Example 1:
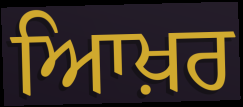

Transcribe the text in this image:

ਆਿਖ਼ਰ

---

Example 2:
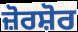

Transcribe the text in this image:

ਜ਼ੋਰਸ਼ੋਰ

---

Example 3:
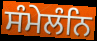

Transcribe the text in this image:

ਸੰਮੇਲੰਨਿ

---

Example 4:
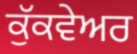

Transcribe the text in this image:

ਕੁੱਕਵੇਅਰ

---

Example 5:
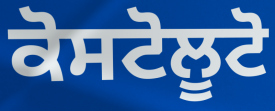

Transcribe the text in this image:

ਕੋਸਟੋਲੂਟੋ